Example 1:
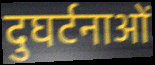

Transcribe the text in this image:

दुघर्टनाओं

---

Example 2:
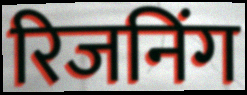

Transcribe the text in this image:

रिजनिंग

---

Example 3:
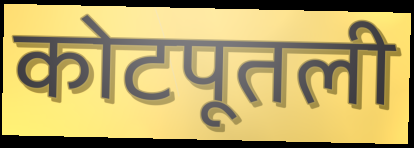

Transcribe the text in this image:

कोटपूतली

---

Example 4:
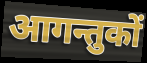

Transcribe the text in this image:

आगन्तुकों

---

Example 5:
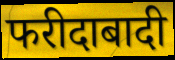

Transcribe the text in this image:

फरीदाबादी